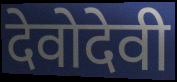
देवोदेवी